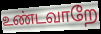
உண்டவாறே